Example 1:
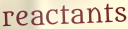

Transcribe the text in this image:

reactants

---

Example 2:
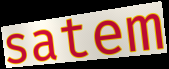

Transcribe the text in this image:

satem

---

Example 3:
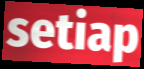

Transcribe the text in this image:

setiap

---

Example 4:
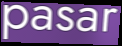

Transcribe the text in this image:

pasar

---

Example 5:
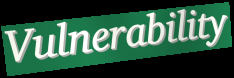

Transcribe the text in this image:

Vulnerability